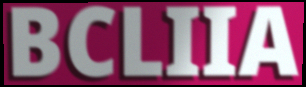
BCLIIA